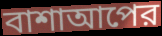
বাশাআপের